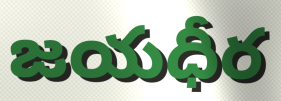
జయధీర